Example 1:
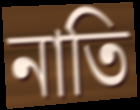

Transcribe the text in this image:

নাতি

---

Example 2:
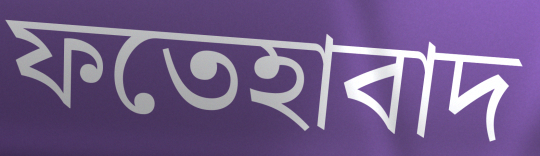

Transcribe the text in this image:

ফতেহাবাদ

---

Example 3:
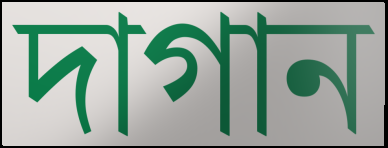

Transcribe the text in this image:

দাগান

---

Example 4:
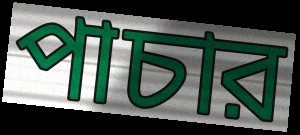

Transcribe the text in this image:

পাচার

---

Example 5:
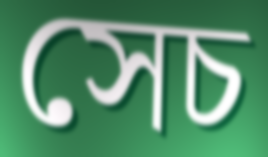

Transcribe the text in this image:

সেচ